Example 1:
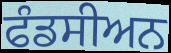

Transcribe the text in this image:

ਫੰਡਸੀਅਨ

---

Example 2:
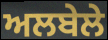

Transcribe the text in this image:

ਅਲਬੇਲੇ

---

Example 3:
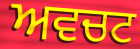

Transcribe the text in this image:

ਅਵਚਟ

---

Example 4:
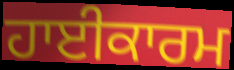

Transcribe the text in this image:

ਹਾਈਕਾਰਮ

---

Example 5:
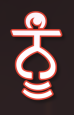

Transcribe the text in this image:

ਨੂਂੰ